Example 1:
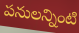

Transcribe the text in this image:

పనులన్నింటి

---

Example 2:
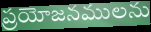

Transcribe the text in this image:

ప్రయోజనములను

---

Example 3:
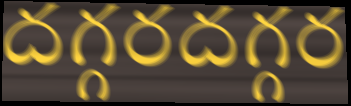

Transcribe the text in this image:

దగ్గరదగ్గర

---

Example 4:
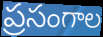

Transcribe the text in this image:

ప్రసంగాల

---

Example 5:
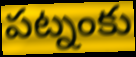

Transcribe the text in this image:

పట్నంకు